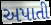
અપાતી